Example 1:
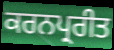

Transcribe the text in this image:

ਕਰਨਪ੍ਰਰੀਤ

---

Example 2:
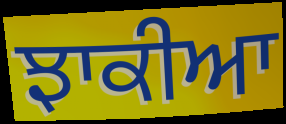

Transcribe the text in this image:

ਝਾਕੀਆ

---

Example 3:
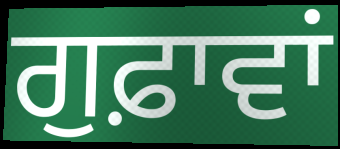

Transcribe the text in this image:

ਗੁਫ਼ਾਵਾਂ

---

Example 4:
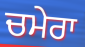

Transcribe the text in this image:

ਚਮੇਰਾ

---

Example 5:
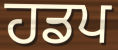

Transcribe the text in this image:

ਹਡਪ